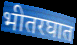
भीतरघात